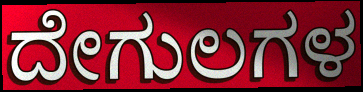
ದೇಗುಲಗಳ